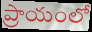
ప్రాయంలో